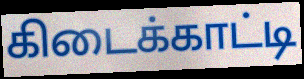
கிடைக்காட்டி